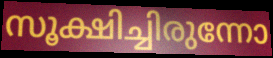
സൂക്ഷിച്ചിരുന്നോ